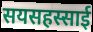
सयसहस्साई